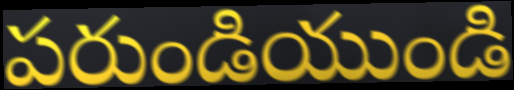
పరుండియుండి